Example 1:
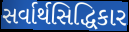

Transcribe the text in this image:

સર્વાર્થસિદ્ધિકાર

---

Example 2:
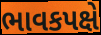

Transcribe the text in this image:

ભાવકપક્ષે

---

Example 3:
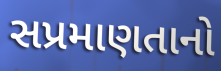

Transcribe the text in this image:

સપ્રમાણતાનો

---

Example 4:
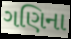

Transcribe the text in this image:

ગણિના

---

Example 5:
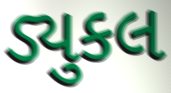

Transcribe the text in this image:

ડ્યુકલ